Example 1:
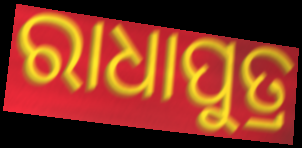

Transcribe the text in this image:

ରାଧାପୁତ୍ର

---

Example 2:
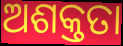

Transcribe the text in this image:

ଅଶକ୍ତତା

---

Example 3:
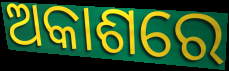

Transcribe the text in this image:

ଅକାଶରେ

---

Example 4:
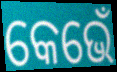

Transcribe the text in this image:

କେଭେଁ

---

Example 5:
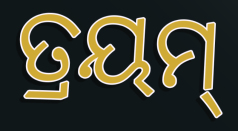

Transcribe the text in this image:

ତ୍ରୟମ୍